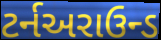
ટર્નઅરાઉન્ડ